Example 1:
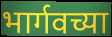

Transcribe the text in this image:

भार्गवच्या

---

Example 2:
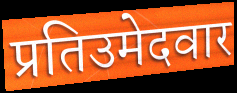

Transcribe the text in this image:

प्रतिउमेदवार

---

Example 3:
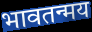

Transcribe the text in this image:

भावतन्मय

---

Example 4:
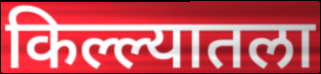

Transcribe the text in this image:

किल्ल्यातला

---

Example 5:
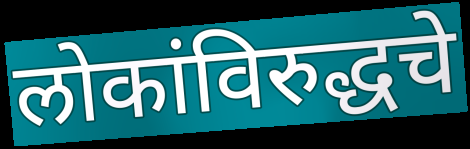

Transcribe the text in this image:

लोकांविरुद्धचे